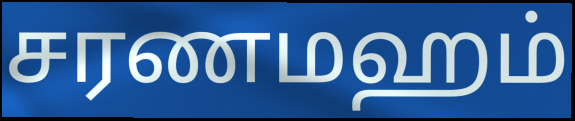
சரணமஹம்